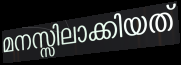
മനസ്സിലാക്കിയത്